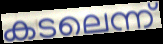
കടലെന്ന്